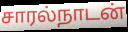
சாரல்நாடன்